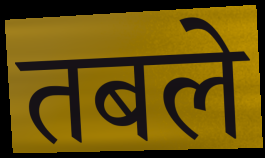
तबले